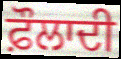
ਫ਼ੌਲਾਦੀ